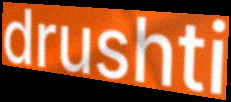
drushti